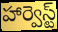
హార్వెస్ట్